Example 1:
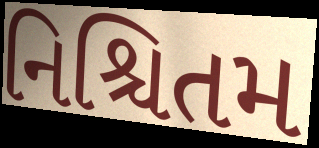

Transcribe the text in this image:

નિશ્ચિતમ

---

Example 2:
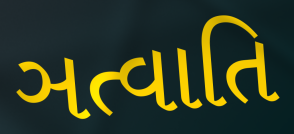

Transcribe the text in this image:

ઞત્વાતિ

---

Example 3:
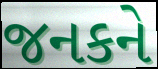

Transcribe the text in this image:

જનકને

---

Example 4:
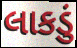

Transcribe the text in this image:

લાકડું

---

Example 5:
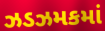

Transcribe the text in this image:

ઝડઝમકમાં